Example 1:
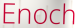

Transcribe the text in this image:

Enoch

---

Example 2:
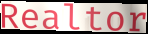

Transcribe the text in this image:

Realtor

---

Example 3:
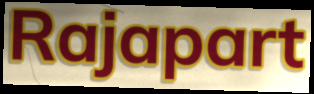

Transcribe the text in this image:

Rajapart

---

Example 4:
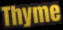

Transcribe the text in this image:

Thyme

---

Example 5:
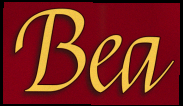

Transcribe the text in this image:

Bea